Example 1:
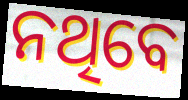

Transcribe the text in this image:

ନଥିବେ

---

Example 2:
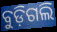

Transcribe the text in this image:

ବୁଡ଼ିଗଲି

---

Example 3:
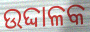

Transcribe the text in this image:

ଉଦ୍ଦାଳକ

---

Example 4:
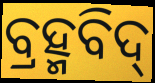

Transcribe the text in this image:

ବ୍ରହ୍ମବିଦ୍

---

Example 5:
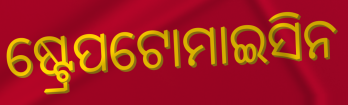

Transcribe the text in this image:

ଷ୍ଟ୍ରେପଟୋମାଇସିନ